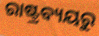
ରାଷ୍ଟ୍ରବ୍ୟୟରୁ